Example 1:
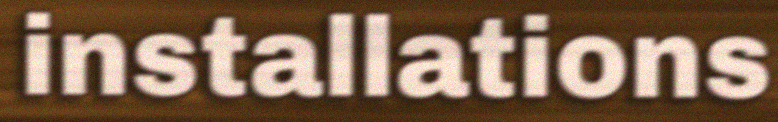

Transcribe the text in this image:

installations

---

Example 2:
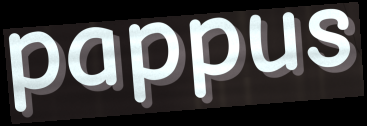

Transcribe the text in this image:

pappus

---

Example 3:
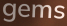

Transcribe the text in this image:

gems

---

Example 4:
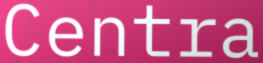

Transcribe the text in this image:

Centra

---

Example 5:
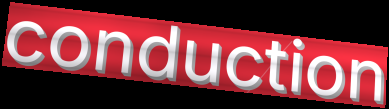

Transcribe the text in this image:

conduction